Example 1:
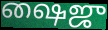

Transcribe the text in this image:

ஷைஜு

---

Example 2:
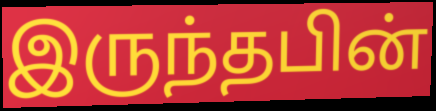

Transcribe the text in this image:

இருந்தபின்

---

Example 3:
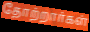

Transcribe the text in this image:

தோற்றார்கள்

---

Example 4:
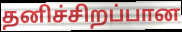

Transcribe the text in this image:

தனிச்சிறப்பான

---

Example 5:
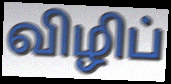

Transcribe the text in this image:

விழிப்